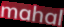
mahal